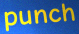
punch